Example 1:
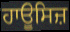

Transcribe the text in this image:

ਹਾਊਸਿਜ਼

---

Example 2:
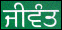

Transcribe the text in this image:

ਜੀਵੰਤ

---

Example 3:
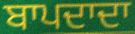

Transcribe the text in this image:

ਬਾਪਦਾਦਾ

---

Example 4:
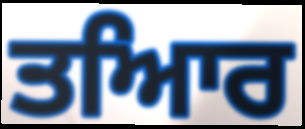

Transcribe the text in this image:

ਤਆਿਰ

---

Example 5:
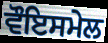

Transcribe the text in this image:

ਵੌਇਸਮੇਲ